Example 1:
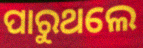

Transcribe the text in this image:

ପାରୁଥଲେ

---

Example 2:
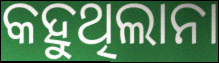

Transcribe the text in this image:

କହୁଥିଲାନା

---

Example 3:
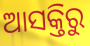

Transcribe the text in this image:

ଆସକ୍ତିରୁ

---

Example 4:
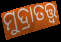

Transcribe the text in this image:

ମୁଦ୍ରାତତ୍ତ୍ବ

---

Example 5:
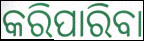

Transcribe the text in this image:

କରିପାରିବା